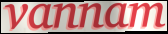
vannam